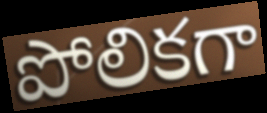
పోలికగా